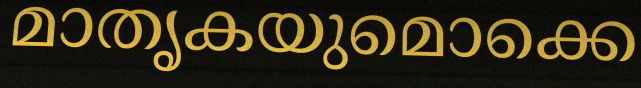
മാതൃകയുമൊക്കെ